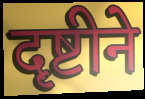
दृष्टीने